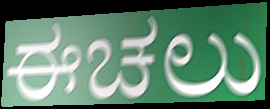
ಈಚಲು